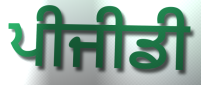
ਪੀਜੀਡੀ